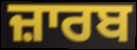
ਜ਼ਾਰਬ